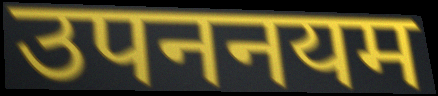
उपननयम